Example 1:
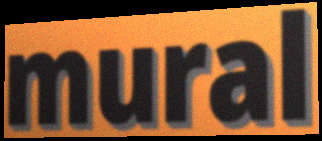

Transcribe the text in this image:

mural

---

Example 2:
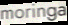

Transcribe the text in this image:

moringa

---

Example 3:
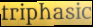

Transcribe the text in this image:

triphasic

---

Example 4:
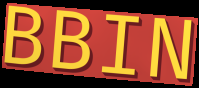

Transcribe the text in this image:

BBIN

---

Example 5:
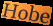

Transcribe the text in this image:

Hobe